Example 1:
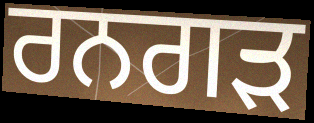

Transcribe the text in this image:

ਰਨਗੜ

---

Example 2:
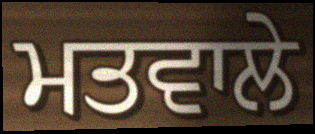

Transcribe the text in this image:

ਮਤਵਾਲੇ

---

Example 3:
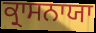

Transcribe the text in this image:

ਕ੍ਰਾਸਨਾਯਾ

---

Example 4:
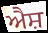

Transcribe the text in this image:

ਐਸ਼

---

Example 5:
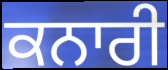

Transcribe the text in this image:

ਕਨਾਰੀ